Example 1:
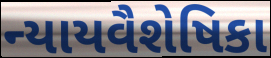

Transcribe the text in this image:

ન્યાયવૈશેષિકા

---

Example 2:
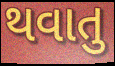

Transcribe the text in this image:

થવાતુ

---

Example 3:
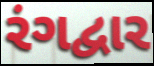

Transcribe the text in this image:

રંગદ્વાર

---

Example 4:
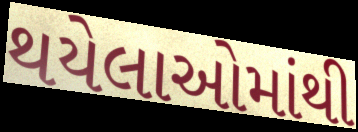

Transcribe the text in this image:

થયેલાઓમાંથી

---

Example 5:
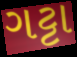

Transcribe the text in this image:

ગટ્ટા